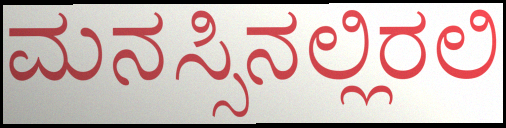
ಮನಸ್ಸಿನಲ್ಲಿರಲಿ